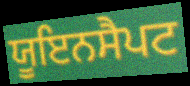
ਯੂਇਨਸੈਪਟ